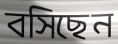
বসিছেন